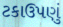
ટકાઉપણું